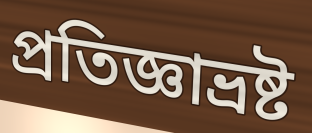
প্রতিজ্ঞাভ্রষ্ট